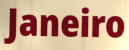
Janeiro